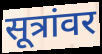
सूत्रांवर